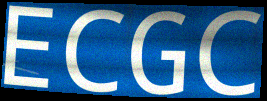
ECGC